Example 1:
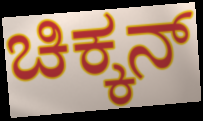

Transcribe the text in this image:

ಚಿಕ್ಕನ್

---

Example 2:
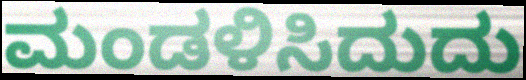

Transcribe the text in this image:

ಮಂಡಳಿಸಿದುದು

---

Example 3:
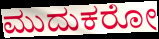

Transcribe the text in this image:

ಮುದುಕರೋ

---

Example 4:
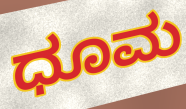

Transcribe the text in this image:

ಧೂಮ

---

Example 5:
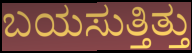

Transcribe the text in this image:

ಬಯಸುತ್ತಿತ್ತು